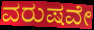
ವರುಷವೇ